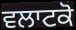
ਵਲਾਟਕੋ